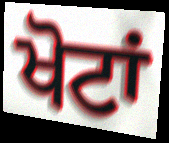
ਖੋਟਾਂ